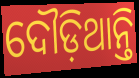
ଦୌଡ଼ିଥାନ୍ତି